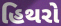
હિથરો